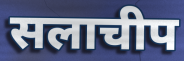
सलाचीप